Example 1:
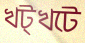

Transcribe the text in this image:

খট্‌খটে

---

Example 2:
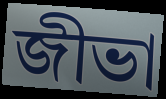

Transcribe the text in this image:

জীভা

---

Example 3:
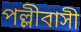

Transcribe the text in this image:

পল্লীবাসী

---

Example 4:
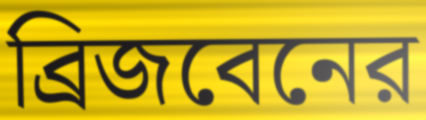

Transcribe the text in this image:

ব্রিজবেনের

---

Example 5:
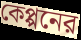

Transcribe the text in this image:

কেপ্পনের